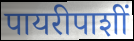
पायरीपाशीं